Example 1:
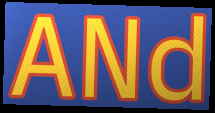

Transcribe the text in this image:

ANd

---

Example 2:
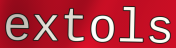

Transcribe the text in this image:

extols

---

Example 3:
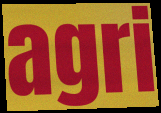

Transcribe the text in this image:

agri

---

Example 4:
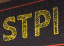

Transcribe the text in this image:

STPI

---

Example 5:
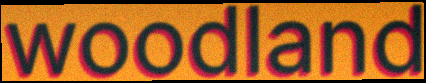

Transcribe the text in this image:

woodland